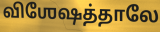
விஶேஷத்தாலே